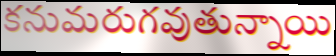
కనుమరుగవుతున్నాయి